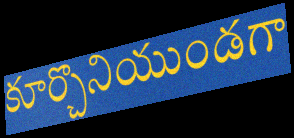
కూర్చొనియుండగా